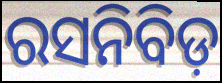
ରସନିବିଡ଼